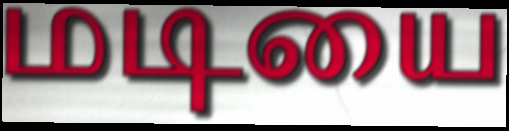
மடியை